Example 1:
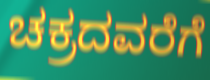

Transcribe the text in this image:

ಚಕ್ರದವರೆಗೆ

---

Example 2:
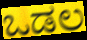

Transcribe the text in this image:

ಒಡಲ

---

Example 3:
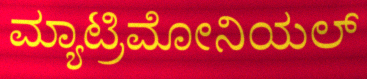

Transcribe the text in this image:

ಮ್ಯಾಟ್ರಿಮೋನಿಯಲ್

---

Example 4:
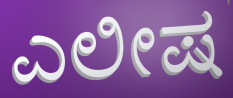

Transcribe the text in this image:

ಎಲೀಷ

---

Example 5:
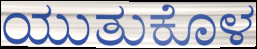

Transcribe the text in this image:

ಯುತುಕೊಳ